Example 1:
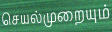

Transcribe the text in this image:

செயல்முறையும்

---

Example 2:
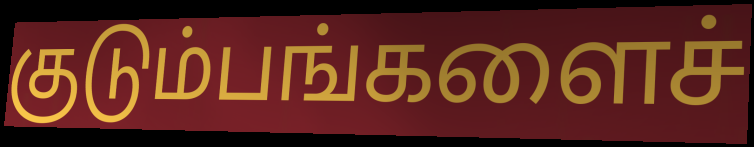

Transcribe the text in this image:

குடும்பங்களைச்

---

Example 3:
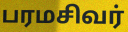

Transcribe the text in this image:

பரமசிவர்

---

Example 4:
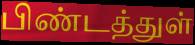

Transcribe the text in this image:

பிண்டத்துள்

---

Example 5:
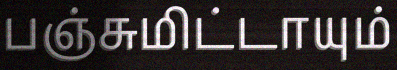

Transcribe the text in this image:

பஞ்சுமிட்டாயும்